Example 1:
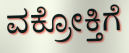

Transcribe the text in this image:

ವಕ್ರೋಕ್ತಿಗೆ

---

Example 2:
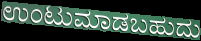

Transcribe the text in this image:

ಉಂಟುಮಾಡಬಹುದು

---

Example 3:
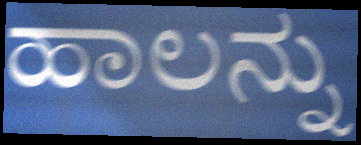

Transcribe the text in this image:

ಹಾಲನ್ನು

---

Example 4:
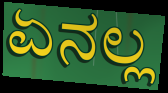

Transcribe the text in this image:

ಏನಲ್ಲ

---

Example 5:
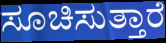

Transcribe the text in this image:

ಸೂಚಿಸುತ್ತಾರೆ